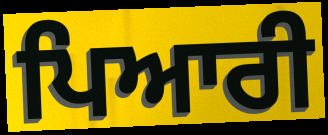
ਪਿਆਰੀ